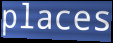
places